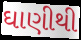
ઘાણીથી